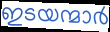
ഇടയന്മാർ